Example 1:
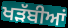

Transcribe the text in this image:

ਖੜੱਬੀਆਂ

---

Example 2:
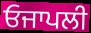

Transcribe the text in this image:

ਓਜਾਪਲੀ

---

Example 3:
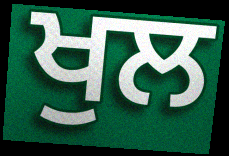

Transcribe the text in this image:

ਖੁਲ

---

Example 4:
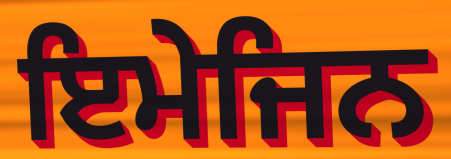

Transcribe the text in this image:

ਇਮੇਜਿਨ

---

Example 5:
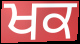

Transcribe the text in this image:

ਖਕ